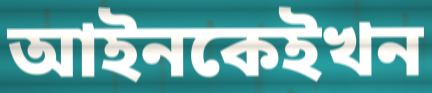
আইনকেইখন